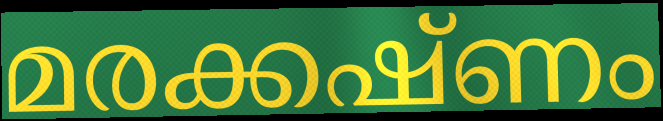
മരക്കഷ്ണം